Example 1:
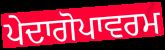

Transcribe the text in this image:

ਪੇਦਾਗੋਪਾਵਰਮ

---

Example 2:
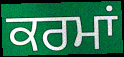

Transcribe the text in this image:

ਕਰਮਾਂ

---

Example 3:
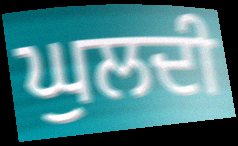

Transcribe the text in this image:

ਘੁਲਦੀ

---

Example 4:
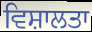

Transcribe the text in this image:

ਵਿਸ਼ਾਲਤਾ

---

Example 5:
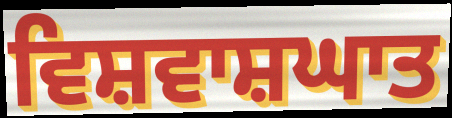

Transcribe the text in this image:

ਵਿਸ਼ਵਾਸ਼ਘਾਤ